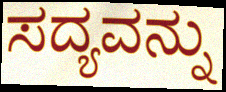
ಸದ್ಯವನ್ನು